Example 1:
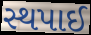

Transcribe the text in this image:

સ્થપાઈ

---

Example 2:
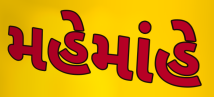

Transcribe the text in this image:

મહેમાંહે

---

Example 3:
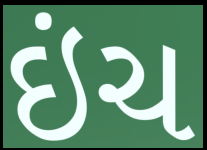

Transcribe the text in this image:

ઇંચ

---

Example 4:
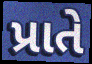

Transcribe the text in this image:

પ્રાતે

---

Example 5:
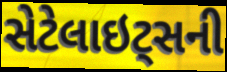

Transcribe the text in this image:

સેટેલાઇટ્સની